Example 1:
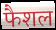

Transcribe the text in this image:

फैशल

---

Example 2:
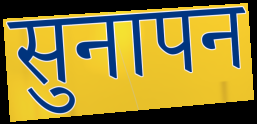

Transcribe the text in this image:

सुनापन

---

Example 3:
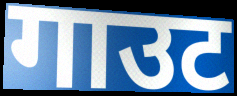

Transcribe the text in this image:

गाउट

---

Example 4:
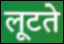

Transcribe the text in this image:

लूटते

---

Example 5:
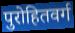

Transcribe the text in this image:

पुरोहितवर्ग